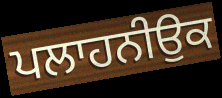
ਪਲਾਹਨੀਉਕ